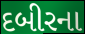
દબીરના